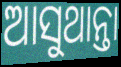
ଆସୁଥାନ୍ତା